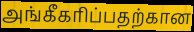
அங்கீகரிப்பதற்கான